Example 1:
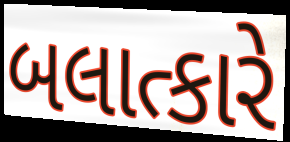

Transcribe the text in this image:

બલાત્કારે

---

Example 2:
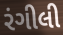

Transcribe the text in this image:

રંગીલી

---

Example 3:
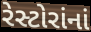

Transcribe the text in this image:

રેસ્ટોરાંનાં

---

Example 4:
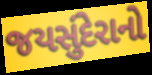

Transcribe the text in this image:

જયસુંદેરાનો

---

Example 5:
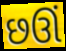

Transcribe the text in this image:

છઊં